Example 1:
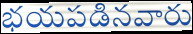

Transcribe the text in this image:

భయపడినవారు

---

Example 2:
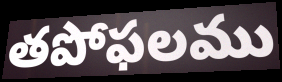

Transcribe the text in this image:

తపోఫలము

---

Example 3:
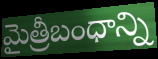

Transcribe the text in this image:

మైత్రీబంధాన్ని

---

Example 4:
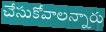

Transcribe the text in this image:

చేసుకోవాలన్నారు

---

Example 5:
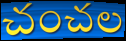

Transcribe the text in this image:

చంచల